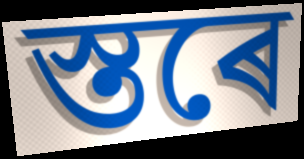
স্তৰে